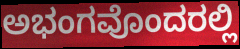
ಅಭಂಗವೊಂದರಲ್ಲಿ